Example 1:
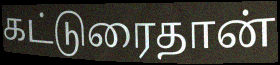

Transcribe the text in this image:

கட்டுரைதான்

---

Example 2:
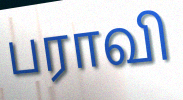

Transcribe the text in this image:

பராவி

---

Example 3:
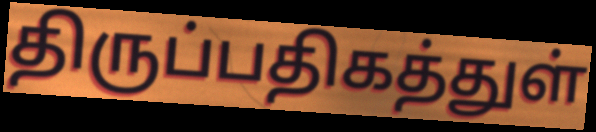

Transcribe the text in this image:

திருப்பதிகத்துள்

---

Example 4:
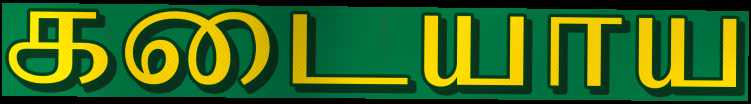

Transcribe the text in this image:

கடையாய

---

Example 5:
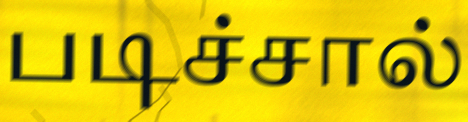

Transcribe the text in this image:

படிச்சால்